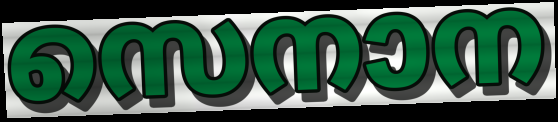
സെനാന